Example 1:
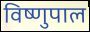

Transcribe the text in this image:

विष्णुपाल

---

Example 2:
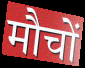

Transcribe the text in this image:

मौचों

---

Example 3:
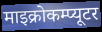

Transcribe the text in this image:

माइक्रोकम्प्यूटर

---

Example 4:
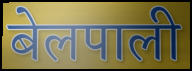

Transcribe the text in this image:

बेलपाली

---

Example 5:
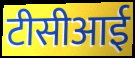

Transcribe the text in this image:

टीसीआई